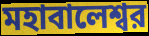
মহাবালেশ্বর